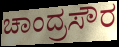
ಚಾಂದ್ರಸೌರ